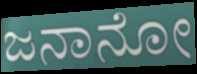
ಜನಾನೋ